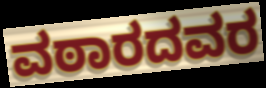
ವಠಾರದವರ